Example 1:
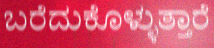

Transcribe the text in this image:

ಬರೆದುಕೊಳ್ಳುತ್ತಾರೆ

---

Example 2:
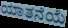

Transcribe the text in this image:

ಯಾತನೆಯೆ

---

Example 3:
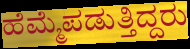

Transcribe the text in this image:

ಹೆಮ್ಮೆಪಡುತ್ತಿದ್ದರು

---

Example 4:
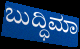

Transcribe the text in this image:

ಬುದ್ಧಿಮಾ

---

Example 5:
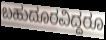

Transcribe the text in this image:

ಬಹುದೂರವಿದ್ದರೂ